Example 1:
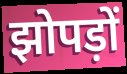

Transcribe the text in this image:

झोपड़ों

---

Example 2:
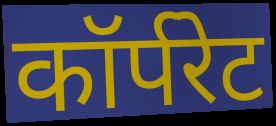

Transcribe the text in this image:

कॉर्परेट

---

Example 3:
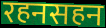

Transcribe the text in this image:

रहनसहन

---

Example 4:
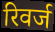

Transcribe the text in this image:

रिवर्ज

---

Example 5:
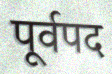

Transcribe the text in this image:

पूर्वपद